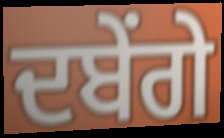
ਦਬੇਂਗੇ